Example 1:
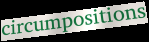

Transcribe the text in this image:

circumpositions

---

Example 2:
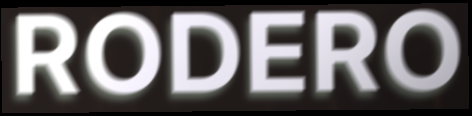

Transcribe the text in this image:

RODERO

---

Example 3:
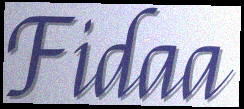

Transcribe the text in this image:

Fidaa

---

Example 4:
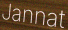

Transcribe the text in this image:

Jannat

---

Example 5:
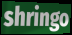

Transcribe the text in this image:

shringo